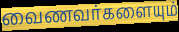
வைணவர்களையும்